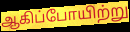
ஆகிப்போயிற்று